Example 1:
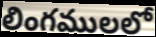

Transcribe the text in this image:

లింగములలో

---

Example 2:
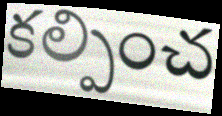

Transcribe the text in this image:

కల్పించ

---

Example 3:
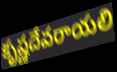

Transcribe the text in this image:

కృష్ణదేవరాయలి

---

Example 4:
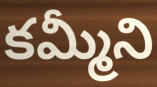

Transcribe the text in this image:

కమ్మీని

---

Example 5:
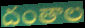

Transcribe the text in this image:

దంతాల